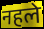
नहले